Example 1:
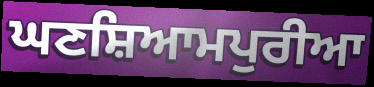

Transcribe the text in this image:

ਘਣਸ਼ਿਆਮਪੁਰੀਆ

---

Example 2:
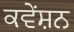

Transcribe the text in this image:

ਕਵੇਂਸ਼ਨ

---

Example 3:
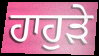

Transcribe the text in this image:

ਹਾਹੁੜੇ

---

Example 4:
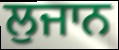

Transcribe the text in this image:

ਲੁਜਾਨ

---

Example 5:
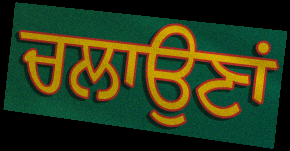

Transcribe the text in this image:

ਚਲਾਉਣਾਂ